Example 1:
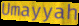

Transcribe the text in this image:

Umayyah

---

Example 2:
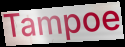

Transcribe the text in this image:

Tampoe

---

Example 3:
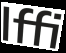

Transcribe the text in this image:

Iffi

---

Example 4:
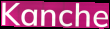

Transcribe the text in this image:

Kanche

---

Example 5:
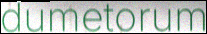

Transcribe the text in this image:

dumetorum